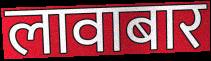
लावाबार